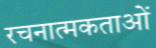
रचनात्मकताओं